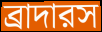
ব্রাদারস